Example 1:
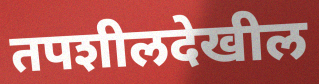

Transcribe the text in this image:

तपशीलदेखील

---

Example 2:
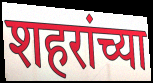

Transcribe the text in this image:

शहरांच्या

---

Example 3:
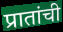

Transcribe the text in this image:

प्रातांची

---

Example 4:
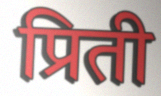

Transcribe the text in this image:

प्रिती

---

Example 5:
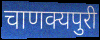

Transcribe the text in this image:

चाणक्यपुरी